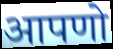
आपणो